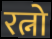
रत्नो